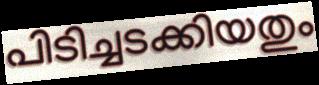
പിടിച്ചടക്കിയതും